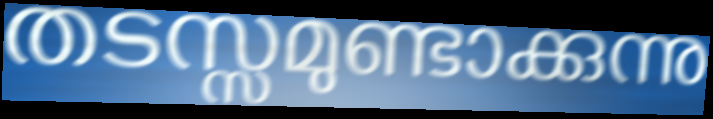
തടസ്സമുണ്ടാക്കുന്നു